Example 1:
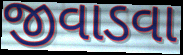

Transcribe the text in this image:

જીવાડવા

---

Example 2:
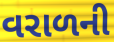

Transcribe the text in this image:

વરાળની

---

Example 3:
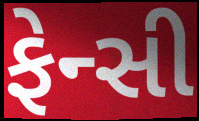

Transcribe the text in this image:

ફેન્સી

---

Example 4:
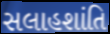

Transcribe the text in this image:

સલાહશાંતિ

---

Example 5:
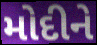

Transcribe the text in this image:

મોદીને